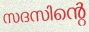
സദസിന്റെ